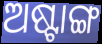
ଅଷ୍ଟାଙ୍ଗ